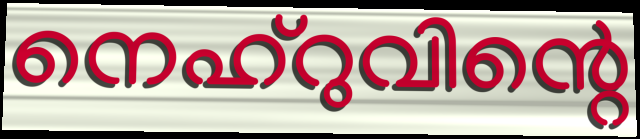
നെഹ്റുവിന്റെ